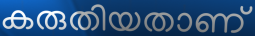
കരുതിയതാണ്